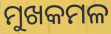
ମୁଖକମଳ